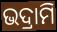
ଭଦ୍ରାମି